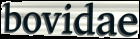
bovidae